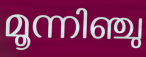
മൂന്നിഞ്ചു